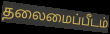
தலைமைப்பீடம்